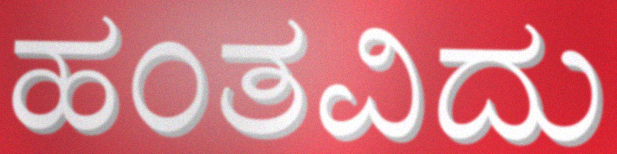
ಹಂತವಿದು